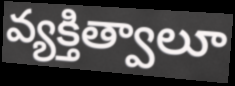
వ్యక్తిత్వాలూ